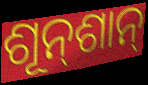
ଶୂନ୍‌ଶାନ୍